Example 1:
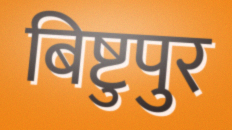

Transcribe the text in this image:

बिष्टुपुर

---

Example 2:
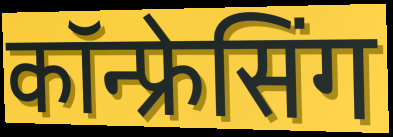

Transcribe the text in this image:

कॉन्फ्रेसिंग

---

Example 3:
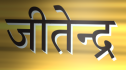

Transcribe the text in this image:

जीतेन्द्र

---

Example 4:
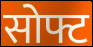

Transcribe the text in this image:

सोफ्ट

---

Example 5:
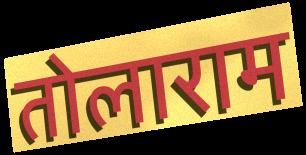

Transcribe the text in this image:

तोलाराम